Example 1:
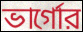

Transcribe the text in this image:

ভার্গোর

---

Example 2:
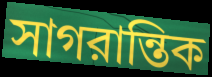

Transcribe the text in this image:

সাগরান্তিক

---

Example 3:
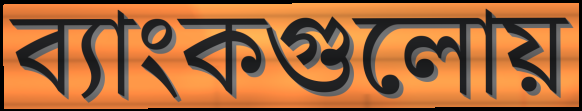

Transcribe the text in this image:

ব্যাংকগুলোয়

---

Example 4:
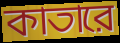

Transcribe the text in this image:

কাতারে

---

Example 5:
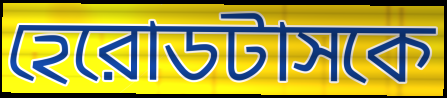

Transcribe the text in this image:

হেরোডটাসকে